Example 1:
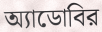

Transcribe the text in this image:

অ্যাডোবির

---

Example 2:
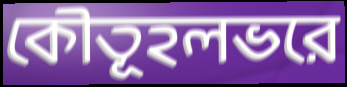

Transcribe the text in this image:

কৌতূহলভরে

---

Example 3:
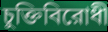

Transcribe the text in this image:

চুক্তিবিরোধী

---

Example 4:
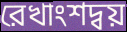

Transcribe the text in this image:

রেখাংশদ্বয়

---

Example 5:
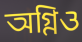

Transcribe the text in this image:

অগ্নিও